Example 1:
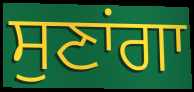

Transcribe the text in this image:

ਸੁਣਾਂਗਾ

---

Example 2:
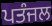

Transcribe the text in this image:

ਪਤੰਜਲ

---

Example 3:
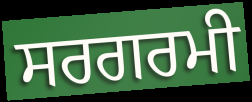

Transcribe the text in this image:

ਸਰਗਰਮੀ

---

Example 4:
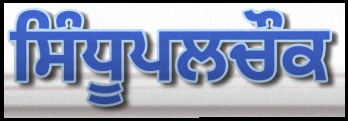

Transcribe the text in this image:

ਸਿੰਧੂਪਲਚੌਕ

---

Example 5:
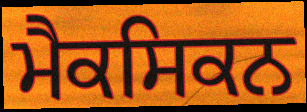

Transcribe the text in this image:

ਮੈਕਸਿਕਨ